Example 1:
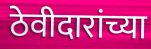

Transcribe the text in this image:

ठेवीदारांच्या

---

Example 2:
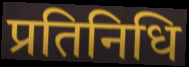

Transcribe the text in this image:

प्रतिनिधि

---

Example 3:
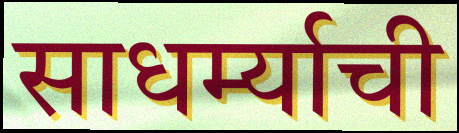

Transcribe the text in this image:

साधर्म्याची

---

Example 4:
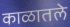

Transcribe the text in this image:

काळातले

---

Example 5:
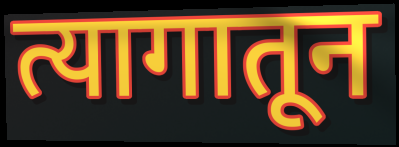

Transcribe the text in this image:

त्यागातून